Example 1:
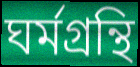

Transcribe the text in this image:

ঘর্মগ্রন্থি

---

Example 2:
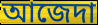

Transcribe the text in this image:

আজেদা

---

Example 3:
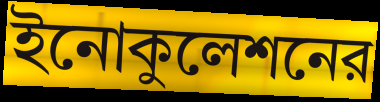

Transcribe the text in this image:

ইনোকুলেশনের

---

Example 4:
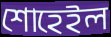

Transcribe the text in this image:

শোহেইল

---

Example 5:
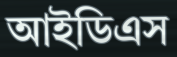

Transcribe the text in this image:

আইডিএস